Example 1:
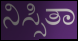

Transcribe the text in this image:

ನಿಸ್ಸಿತಾ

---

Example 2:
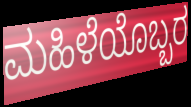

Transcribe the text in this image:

ಮಹಿಳೆಯೊಬ್ಬರ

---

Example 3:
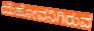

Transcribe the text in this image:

ಯೆಹೋವನಿಗಿರುವ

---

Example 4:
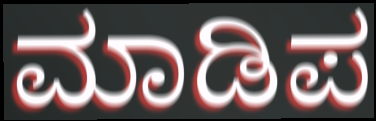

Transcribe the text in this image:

ಮಾಡಿಪ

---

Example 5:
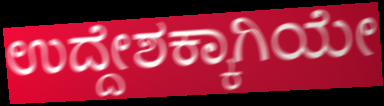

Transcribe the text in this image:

ಉದ್ದೇಶಕ್ಕಾಗಿಯೇ